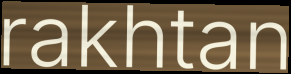
rakhtan